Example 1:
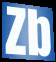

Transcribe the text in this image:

Zb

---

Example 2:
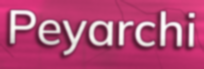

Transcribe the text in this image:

Peyarchi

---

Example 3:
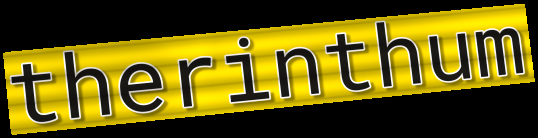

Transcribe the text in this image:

therinthum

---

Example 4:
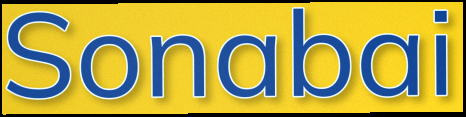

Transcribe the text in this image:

Sonabai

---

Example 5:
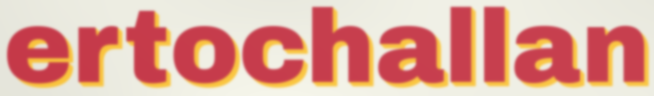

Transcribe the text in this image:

ertochallan